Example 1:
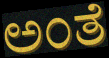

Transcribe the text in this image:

ಅಂತೆ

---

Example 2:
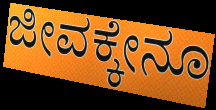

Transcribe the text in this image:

ಜೀವಕ್ಕೇನೂ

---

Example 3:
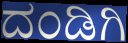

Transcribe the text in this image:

ದಂಡಿಗಿ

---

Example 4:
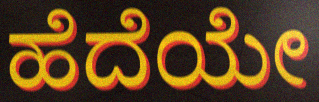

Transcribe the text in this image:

ಹೆದೆಯೇ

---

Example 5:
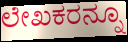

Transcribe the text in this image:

ಲೇಖಕರನ್ನೂ